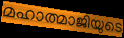
മഹാത്മാജിയുടെ